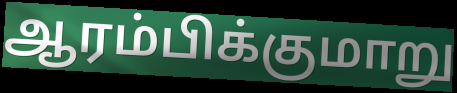
ஆரம்பிக்குமாறு